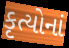
કૃત્યોનાં